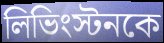
লিভিংস্টনকে